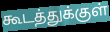
கூடத்துக்குள்